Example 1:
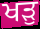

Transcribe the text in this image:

ਖੜੁ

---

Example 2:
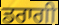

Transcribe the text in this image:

ਡਰਾਗੀ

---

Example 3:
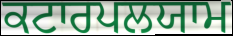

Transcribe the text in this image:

ਕਟਾਰਪਲਯਾਮ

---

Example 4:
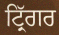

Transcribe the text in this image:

ਟ੍ਰਿੱਗਰ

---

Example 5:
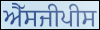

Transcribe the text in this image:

ਐੱਸਜੀਪੀਸ